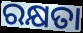
ରକ୍ଷତା